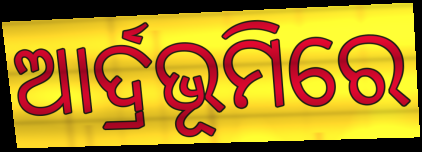
ଆର୍ଦ୍ରଭୂମିରେ